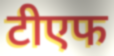
टीएफ